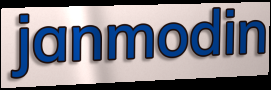
janmodin